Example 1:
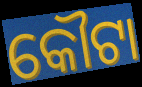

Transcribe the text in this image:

କୌଟା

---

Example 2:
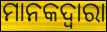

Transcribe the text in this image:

ମାନକଦ୍ୱାରା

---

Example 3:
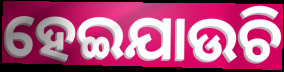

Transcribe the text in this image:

ହେଇଯାଉଚି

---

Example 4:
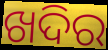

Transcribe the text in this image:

ଖଦିର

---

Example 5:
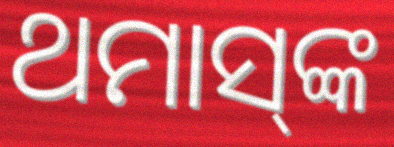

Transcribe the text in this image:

ଥମାସ୍‌ଙ୍କ